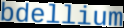
bdellium